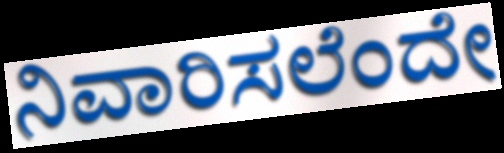
ನಿವಾರಿಸಲೆಂದೇ